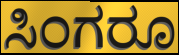
ಸಿಂಗರೂ